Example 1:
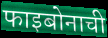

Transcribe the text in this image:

फाइबोनाची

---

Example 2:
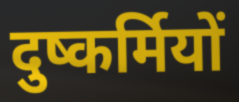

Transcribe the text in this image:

दुष्कर्मियों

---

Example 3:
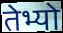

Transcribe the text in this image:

तेभ्यो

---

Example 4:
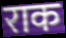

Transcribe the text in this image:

राक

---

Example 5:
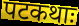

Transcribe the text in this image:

पटकथाः